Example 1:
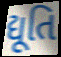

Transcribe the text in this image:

દ્યૂતિ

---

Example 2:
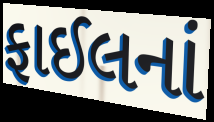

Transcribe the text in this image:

ફાઈલનાં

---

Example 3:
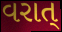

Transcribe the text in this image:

વરાત્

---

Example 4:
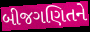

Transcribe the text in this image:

બીજગણિતને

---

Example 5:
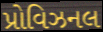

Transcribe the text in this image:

પ્રોવિઝનલ